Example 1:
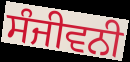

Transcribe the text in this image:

ਸੰਜੀਵਨੀ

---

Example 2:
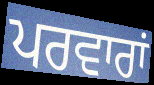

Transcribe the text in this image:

ਪਰਵਾਰਾਂ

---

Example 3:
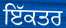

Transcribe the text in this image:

ਇੱਕਤਰ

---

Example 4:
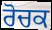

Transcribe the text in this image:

ਰੋਚਕ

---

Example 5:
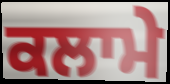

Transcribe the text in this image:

ਕਲਾਮੇ